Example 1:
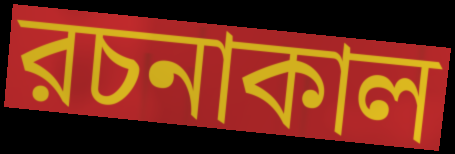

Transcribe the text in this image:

রচনাকাল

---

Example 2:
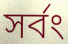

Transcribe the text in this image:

সর্বং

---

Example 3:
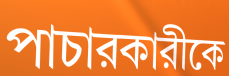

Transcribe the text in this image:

পাচারকারীকে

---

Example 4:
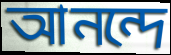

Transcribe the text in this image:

আনন্দে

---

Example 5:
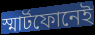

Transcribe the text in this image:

স্মার্টফোনেই